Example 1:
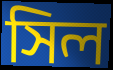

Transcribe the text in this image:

সিল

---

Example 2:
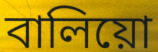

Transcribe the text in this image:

বালিয়ো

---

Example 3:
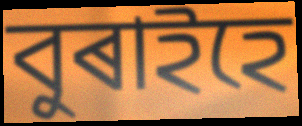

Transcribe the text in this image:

বুৰাইহে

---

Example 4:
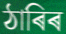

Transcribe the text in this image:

ঠাৰিৰ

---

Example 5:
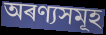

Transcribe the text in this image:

অৰণ্যসমূহ